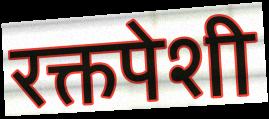
रक्तपेशी